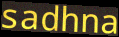
sadhna